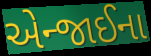
એન્જાઈના